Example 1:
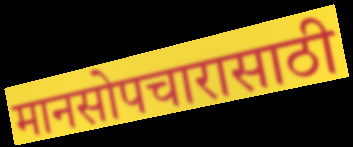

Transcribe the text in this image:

मानसोपचारासाठी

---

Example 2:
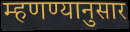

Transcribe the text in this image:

म्हणण्यानुसार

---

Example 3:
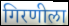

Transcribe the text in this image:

गिरणीला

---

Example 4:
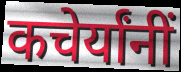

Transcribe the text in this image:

कचेर्यांनीं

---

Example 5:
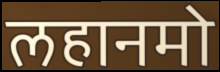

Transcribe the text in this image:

लहानमो